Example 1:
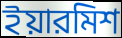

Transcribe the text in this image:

ইয়ারমিশ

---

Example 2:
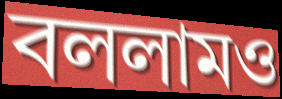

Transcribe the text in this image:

বললামও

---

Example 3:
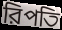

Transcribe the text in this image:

রিপতি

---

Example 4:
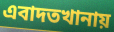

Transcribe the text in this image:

এবাদতখানায়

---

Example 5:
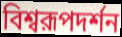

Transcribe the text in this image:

বিশ্বরূপদর্শন